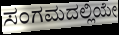
ಸಂಗಮದಲ್ಲಿಯೇ